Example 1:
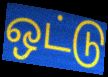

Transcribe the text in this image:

ஒட்டு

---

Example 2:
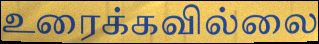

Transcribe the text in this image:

உரைக்கவில்லை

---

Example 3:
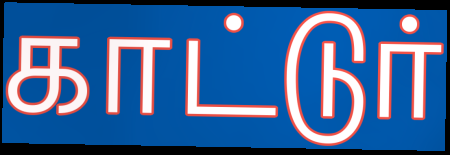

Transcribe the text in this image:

காட்டுர்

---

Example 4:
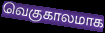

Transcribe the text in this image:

வெகுகாலமாக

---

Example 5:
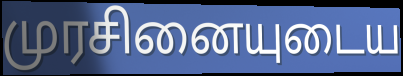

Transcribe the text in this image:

முரசினையுடைய